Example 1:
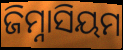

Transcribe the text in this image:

ଜିମ୍ନାସିୟମ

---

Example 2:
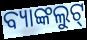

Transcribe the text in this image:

ବ୍ୟାଙ୍କଲୁଟ୍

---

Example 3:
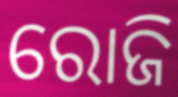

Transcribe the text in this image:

ରୋଜି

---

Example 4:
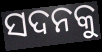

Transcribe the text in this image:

ସଦନକୁ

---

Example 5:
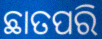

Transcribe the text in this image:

ଛାତପରି